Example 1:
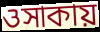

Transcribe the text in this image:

ওসাকায়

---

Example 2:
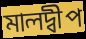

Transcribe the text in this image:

মালদ্বীপ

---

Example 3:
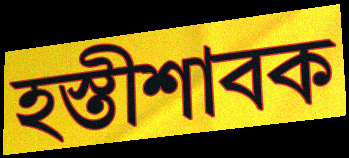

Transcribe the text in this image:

হস্তীশাবক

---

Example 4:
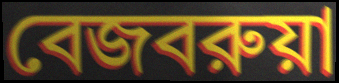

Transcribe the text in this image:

বেজবরুয়া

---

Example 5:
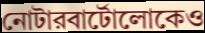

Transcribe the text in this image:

নোটারবার্টোলোকেও